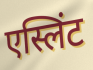
एस्लिंट